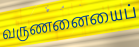
வருணனையைப்